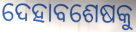
ଦେହାବଶେଷକୁ